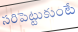
సరిపెట్టుకుంటే